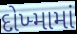
દોખ્મામાં